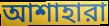
আশাহারা